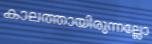
കാലത്തായിരുന്നല്ലോ